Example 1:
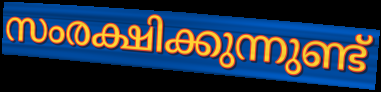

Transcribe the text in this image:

സംരക്ഷിക്കുന്നുണ്ട്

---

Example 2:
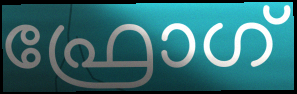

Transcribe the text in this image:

ഫ്രോഗ്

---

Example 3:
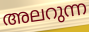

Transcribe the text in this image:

അലറുന്ന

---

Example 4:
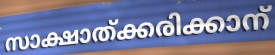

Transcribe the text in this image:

സാക്ഷാത്ക്കരിക്കാന്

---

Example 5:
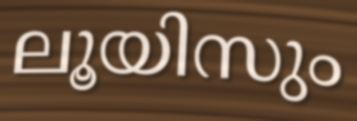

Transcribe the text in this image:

ലൂയിസും